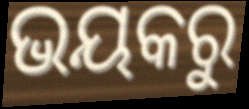
ଭୟକରୁ